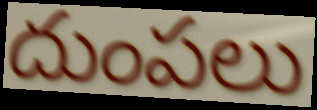
దుంపలు